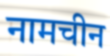
नामचीन